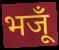
भजूँ